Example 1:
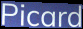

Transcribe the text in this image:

Picard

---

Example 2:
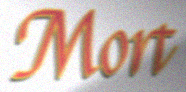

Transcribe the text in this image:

Mort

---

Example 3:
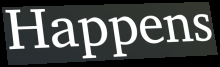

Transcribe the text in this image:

Happens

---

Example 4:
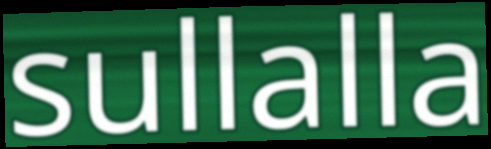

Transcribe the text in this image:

sullalla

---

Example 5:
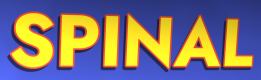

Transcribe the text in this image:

SPINAL